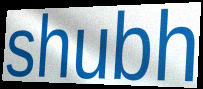
shubh